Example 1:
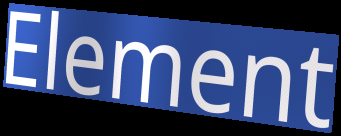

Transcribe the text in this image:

Element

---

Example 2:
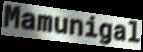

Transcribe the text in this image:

Mamunigal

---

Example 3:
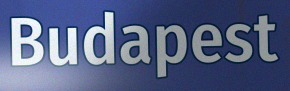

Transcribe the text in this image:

Budapest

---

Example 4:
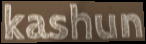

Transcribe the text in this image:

kashun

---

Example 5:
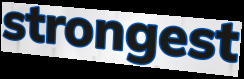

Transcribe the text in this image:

strongest